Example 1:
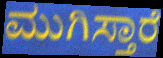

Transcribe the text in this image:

ಮುಗಿಸ್ತಾರೆ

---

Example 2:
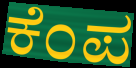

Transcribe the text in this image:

ಕೆಂಪ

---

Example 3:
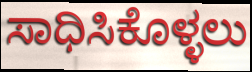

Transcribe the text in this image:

ಸಾಧಿಸಿಕೊಳ್ಳಲು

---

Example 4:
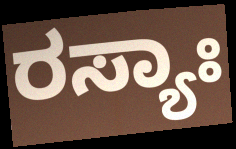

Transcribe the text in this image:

ರಸ್ಯಾಃ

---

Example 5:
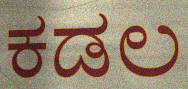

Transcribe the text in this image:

ಕಡಲ